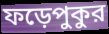
ফড়েপুকুর